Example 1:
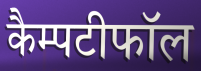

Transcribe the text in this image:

कैम्पटीफॉल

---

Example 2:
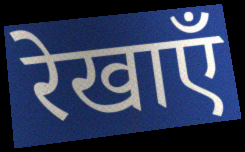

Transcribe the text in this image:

रेखाएँ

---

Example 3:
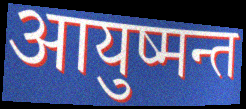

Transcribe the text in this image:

आयुष्मन्त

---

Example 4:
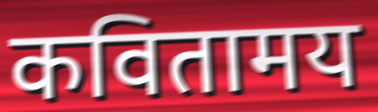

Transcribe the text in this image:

कवितामय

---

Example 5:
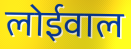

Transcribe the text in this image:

लोईवाल